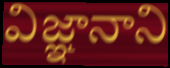
విజ్ఞానాని